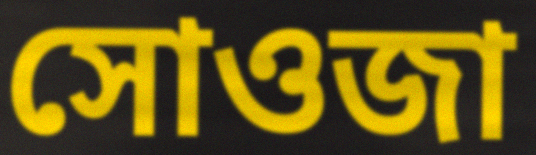
সোওজা